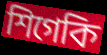
শিগেকি